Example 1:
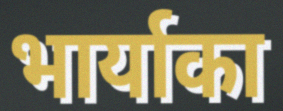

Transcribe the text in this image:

भार्याका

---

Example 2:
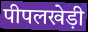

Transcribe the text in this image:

पीपलखेड़ी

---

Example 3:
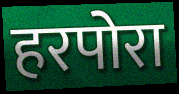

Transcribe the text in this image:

हरपोरा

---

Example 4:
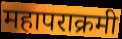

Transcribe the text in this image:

महापराक्रमी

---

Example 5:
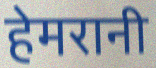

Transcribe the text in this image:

हेमरानी